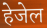
हेजेल